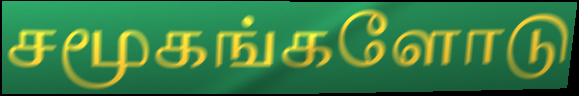
சமூகங்களோடு